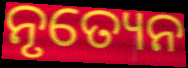
ନୃତ୍ୟେନ